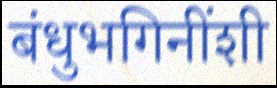
बंधुभगिनींशी